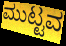
ಮುಟ್ಟವ